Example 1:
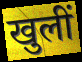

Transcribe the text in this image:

खुलीं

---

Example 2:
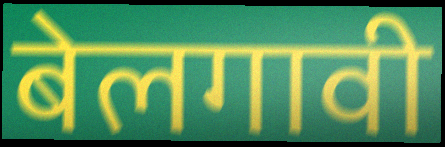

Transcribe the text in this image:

बेलगावी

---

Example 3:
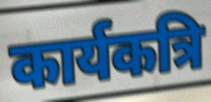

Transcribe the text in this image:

कार्यकत्रि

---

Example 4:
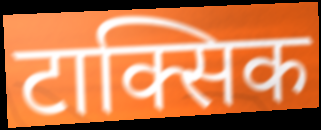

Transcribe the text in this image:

टाक्सिक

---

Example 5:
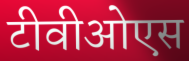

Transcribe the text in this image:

टीवीओएस